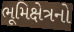
ભૂમિક્ષેત્રનો